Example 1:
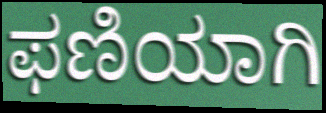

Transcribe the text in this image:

ಫಣಿಯಾಗಿ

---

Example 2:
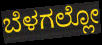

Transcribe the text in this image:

ಬೆಳಗಲ್ಲೋ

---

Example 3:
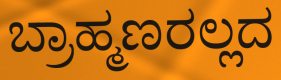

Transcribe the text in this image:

ಬ್ರಾಹ್ಮಣರಲ್ಲದ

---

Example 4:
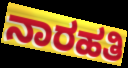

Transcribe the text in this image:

ನಾರಹತಿ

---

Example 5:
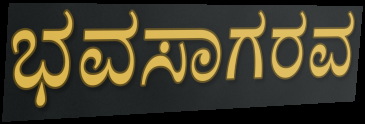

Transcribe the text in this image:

ಭವಸಾಗರವ